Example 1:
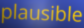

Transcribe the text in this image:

plausible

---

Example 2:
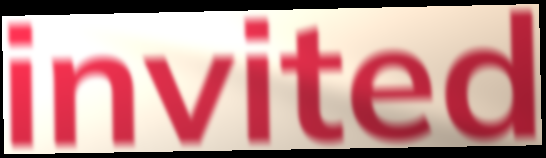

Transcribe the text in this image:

invited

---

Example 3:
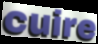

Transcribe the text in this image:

cuire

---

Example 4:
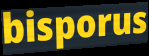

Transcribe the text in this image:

bisporus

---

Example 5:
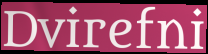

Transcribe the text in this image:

Dvirefni